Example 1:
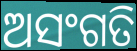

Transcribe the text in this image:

ଅସଂଗତି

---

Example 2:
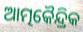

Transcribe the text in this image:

ଆତ୍ମକୈନ୍ଦ୍ରିକ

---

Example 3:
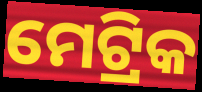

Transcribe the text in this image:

ମେଟ୍ରିକ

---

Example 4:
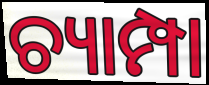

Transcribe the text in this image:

ଚ୍ୟାମ୍ପା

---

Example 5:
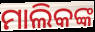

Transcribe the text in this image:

ମାଲିକଙ୍କ